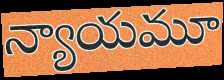
న్యాయమూ